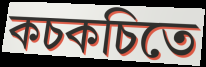
কচকচিতে